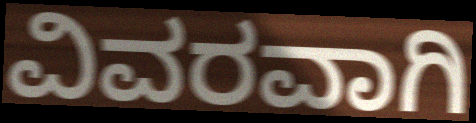
ವಿವರವಾಗಿ